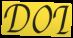
DOI